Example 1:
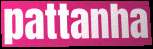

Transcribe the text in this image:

pattanha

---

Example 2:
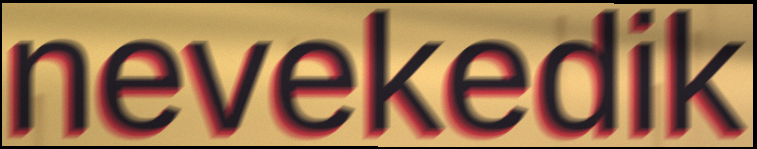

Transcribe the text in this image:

nevekedik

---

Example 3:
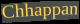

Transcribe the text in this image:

Chhappan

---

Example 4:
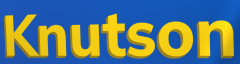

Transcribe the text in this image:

Knutson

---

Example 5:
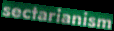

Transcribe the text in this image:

sectarianism